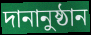
দানানুষ্ঠান